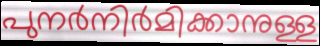
പുനർനിർമിക്കാനുള്ള